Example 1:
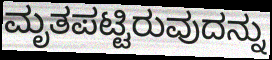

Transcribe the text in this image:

ಮೃತಪಟ್ಟಿರುವುದನ್ನು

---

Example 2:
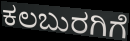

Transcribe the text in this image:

ಕಲಬುರಗಿಗೆ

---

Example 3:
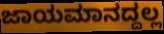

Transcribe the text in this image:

ಜಾಯಮಾನದ್ದಲ್ಲ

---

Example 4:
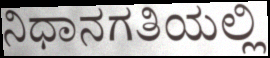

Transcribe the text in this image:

ನಿಧಾನಗತಿಯಲ್ಲಿ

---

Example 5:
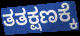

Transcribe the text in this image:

ತತಕ್ಷಣಕ್ಕೆ